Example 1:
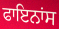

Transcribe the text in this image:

ਫਾਇਨਾਂਸ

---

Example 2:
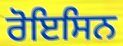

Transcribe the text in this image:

ਰੋਇਸਿਨ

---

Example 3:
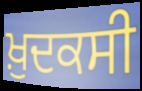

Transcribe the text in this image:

ਖ਼ੁਦਕਸੀ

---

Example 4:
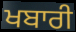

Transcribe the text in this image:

ਖਬਾਰੀ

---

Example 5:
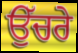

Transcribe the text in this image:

ਉੱਚਰੇ